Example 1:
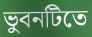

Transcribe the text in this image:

ভুবনটিতে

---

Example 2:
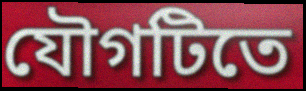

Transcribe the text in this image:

যৌগটিতে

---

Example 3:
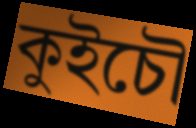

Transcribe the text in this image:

কুইচৌ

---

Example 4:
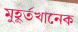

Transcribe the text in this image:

মুহূর্তখানেক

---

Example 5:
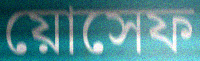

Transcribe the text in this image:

য়োসেফ